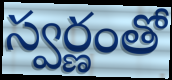
స్వర్ణంతో